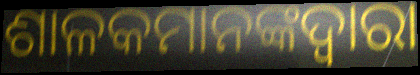
ଶାଳକମାନଙ୍କଦ୍ୱାରା